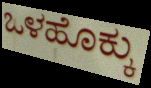
ಒಳಹೊಕ್ಕು